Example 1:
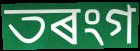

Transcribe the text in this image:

তৰংগ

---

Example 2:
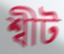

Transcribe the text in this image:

শ্বীট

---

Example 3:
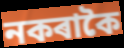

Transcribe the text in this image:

নকৰাকৈ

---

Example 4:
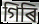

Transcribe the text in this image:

গিৰি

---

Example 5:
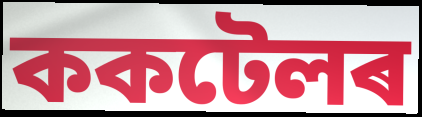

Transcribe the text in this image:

ককটেলৰ